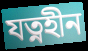
যত্নহীন